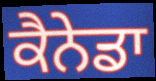
ਕੈਨੇਡਾ